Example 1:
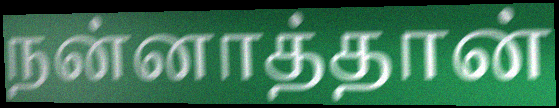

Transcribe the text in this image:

நன்னாத்தான்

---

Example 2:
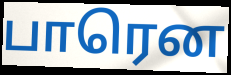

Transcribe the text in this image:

பாரென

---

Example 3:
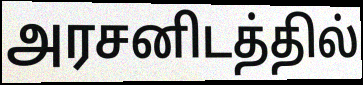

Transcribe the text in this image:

அரசனிடத்தில்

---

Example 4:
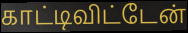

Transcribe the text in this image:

காட்டிவிட்டேன்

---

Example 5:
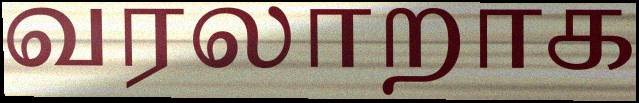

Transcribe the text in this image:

வரலாறாக